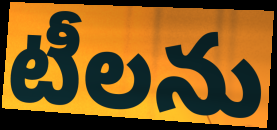
టీలను